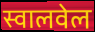
स्वालवेल